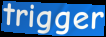
trigger